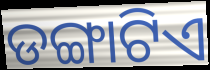
ଡଙ୍ଗାଟିଏ